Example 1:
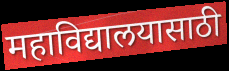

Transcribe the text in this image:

महाविद्यालयासाठी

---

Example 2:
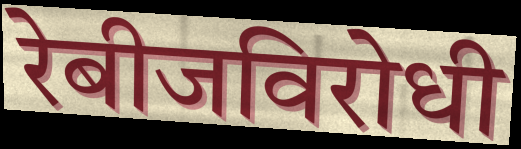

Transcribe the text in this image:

रेबीजविरोधी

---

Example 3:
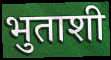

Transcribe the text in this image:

भुताशी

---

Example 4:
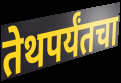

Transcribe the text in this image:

तेथपर्यंतचा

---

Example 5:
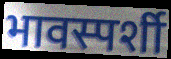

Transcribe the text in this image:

भावस्पर्शी